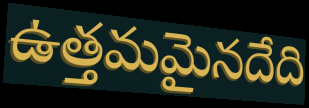
ఉత్తమమైనదేది